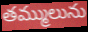
తమ్ములును